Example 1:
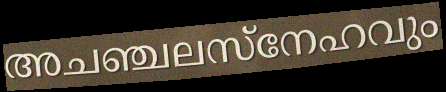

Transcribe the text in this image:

അചഞ്ചലസ്നേഹവും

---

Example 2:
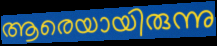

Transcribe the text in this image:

ആരെയായിരുന്നു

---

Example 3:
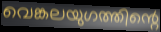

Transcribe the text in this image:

വെങ്കലയുഗത്തിന്റെ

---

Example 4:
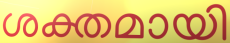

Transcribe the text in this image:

ശക്തമായി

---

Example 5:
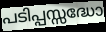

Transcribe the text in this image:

പടിപ്പസ്സദ്ധോ